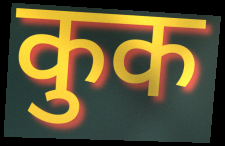
कुक